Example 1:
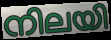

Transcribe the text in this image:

നിലയി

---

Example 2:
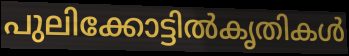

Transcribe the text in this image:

പുലിക്കോട്ടിൽകൃതികൾ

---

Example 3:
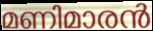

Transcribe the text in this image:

മണിമാരൻ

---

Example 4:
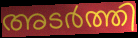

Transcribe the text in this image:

അടർത്തി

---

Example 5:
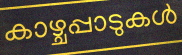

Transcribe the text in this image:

കാഴ്ചപ്പാടുകൾ